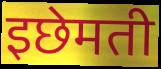
इछेमती